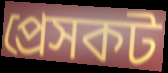
প্রেসকট